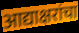
आद्याक्षरांचा